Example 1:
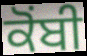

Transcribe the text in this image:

ਕੋਂਬੀ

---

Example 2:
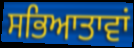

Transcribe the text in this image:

ਸਭਿਆਤਾਵਾਂ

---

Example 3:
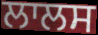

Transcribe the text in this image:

ਲਾਲਸ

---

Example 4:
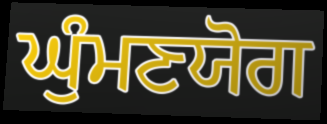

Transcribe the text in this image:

ਘੁੰਮਣਯੋਗ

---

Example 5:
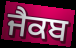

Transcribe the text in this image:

ਜੈਕਬ